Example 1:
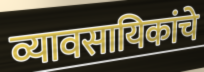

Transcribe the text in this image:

व्यावसायिकांचे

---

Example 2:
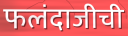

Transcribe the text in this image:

फलंदाजीची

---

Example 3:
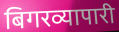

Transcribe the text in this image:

बिगरव्यापारी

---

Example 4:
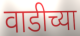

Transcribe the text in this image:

वाडीच्या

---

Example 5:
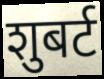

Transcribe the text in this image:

शुबर्ट